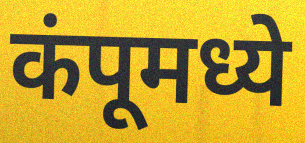
कंपूमध्ये